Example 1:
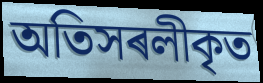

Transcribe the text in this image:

অতিসৰলীকৃত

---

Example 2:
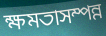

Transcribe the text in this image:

ক্ষমতাসম্পন্ন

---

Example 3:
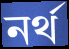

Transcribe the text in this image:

নৰ্থ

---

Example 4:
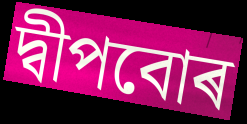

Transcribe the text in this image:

দ্বীপবোৰ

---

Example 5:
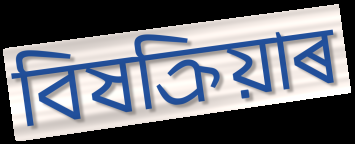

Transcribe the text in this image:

বিষক্ৰিয়াৰ